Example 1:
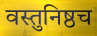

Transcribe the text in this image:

वस्तुनिष्ठच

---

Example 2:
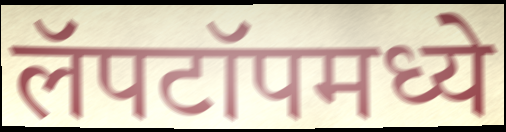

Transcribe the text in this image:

लॅपटॉपमध्ये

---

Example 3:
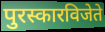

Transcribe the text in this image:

पुरस्कारविजेते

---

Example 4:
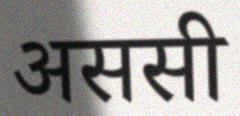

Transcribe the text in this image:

अससी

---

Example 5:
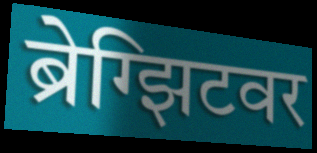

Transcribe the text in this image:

ब्रेग्झिटवर